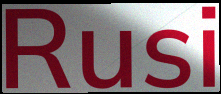
Rusi